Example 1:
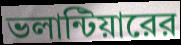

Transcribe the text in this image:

ভলান্টিয়ারের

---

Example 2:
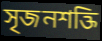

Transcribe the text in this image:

সৃজনশক্তি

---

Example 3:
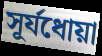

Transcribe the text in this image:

সূর্যধোয়া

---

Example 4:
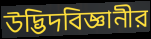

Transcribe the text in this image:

উদ্ভিদবিজ্ঞানীর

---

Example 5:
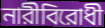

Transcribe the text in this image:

নারীবিরোধী